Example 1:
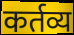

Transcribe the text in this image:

कर्तव्य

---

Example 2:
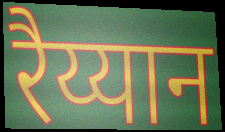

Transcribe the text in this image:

रैय्यान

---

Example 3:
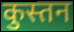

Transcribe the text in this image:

कुस्तन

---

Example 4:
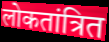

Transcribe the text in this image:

लोकतांत्रित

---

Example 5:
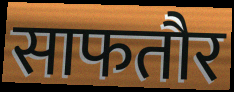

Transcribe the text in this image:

साफतौर